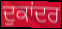
ਦੁਕਾਂਦਰ